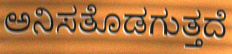
ಅನಿಸತೊಡಗುತ್ತದೆ